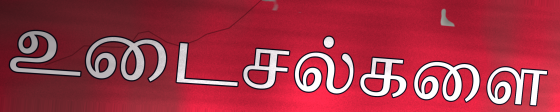
உடைசல்களை